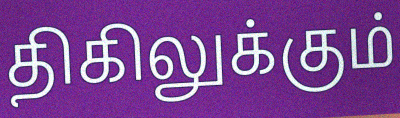
திகிலுக்கும்